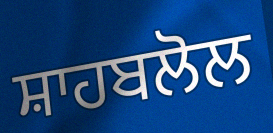
ਸ਼ਾਹਬਲੋਲ